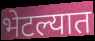
भेटल्यात